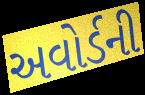
અવોર્ડની